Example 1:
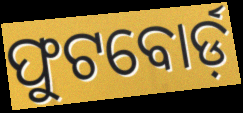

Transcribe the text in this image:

ଫୁଟବୋର୍ଡ଼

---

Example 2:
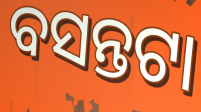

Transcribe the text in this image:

ବସନ୍ତଟା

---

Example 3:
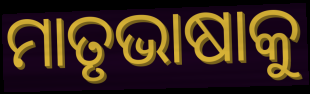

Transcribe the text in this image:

ମାତୃଭାଷାକୁ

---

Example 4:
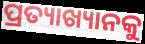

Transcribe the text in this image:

ପ୍ରତ୍ୟାଖ୍ୟାନକୁ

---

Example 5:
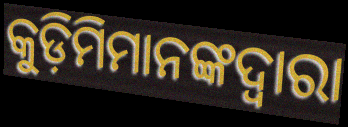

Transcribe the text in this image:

କୁଡ଼ିମିମାନଙ୍କଦ୍ୱାରା